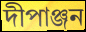
দীপাঞ্জন